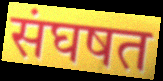
संघषत